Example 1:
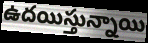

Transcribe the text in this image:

ఉదయిస్తున్నాయి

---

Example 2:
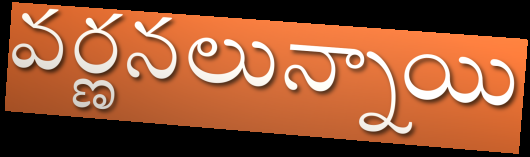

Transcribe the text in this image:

వర్ణనలున్నాయి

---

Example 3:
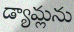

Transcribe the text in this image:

డ్యామ్లను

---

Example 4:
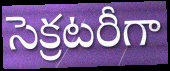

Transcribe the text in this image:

సెక్రటరీగా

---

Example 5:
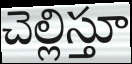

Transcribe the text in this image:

చెల్లిస్తూ